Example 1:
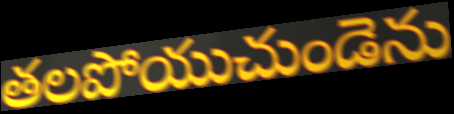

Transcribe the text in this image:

తలపోయుచుండెను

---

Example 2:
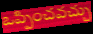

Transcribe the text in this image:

ఒప్పించవచ్చు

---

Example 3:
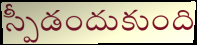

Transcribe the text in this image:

స్పీడందుకుంది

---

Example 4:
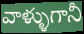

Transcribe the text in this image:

వాళ్ళుగానీ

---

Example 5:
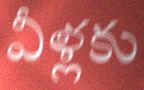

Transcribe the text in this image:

వీళ్లకు